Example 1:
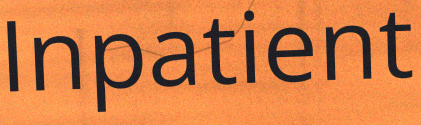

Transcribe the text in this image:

Inpatient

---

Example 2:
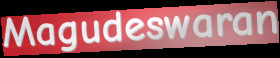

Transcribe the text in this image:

Magudeswaran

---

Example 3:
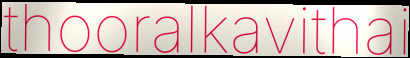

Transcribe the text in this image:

thooralkavithai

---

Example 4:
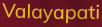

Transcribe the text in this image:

Valayapati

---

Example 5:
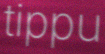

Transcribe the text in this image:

tippu